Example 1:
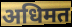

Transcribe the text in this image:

अधिमत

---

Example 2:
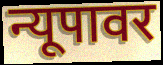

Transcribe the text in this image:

न्यूपावर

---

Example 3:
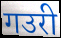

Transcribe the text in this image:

गउरी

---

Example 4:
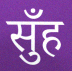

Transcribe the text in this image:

सुँह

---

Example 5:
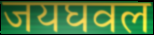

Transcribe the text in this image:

जयघवल